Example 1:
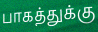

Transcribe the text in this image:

பாகத்துக்கு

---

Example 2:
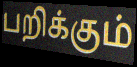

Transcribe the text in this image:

பறிக்கும்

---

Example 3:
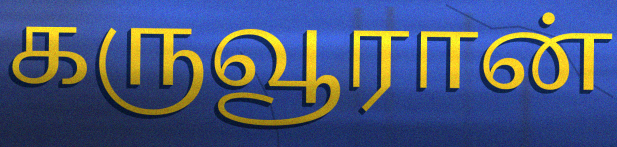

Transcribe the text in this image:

கருவூரான்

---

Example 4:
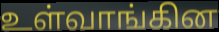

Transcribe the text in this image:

உள்வாங்கின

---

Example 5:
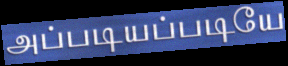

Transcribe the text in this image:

அப்படியப்படியே